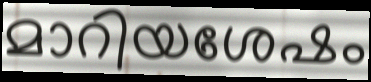
മാറിയശേഷം